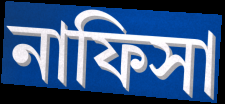
নাফিসা